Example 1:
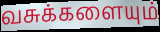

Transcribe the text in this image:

வசுக்களையும்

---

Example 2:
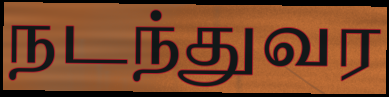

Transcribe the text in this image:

நடந்துவர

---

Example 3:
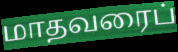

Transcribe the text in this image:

மாதவரைப்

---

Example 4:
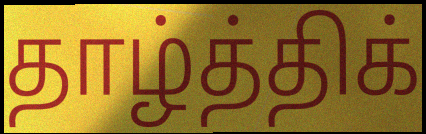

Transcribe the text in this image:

தாழ்த்திக்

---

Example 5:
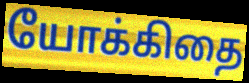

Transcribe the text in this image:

யோக்கிதை